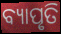
ବ୍ୟାପୃତି